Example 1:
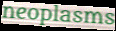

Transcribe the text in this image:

neoplasms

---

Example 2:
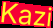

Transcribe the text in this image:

Kazi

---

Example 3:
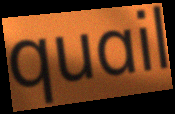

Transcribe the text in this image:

quail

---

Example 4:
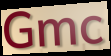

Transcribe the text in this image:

Gmc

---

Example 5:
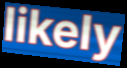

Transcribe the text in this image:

likely